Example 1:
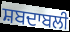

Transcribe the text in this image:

ਸ਼ਬਦਾਬਲੀ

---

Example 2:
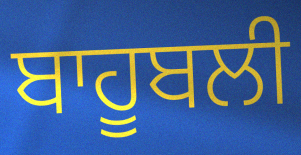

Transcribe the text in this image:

ਬਾਹੂਬਲੀ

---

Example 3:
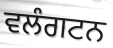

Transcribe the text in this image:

ਵਲੰਗਟਨ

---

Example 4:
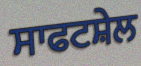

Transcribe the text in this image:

ਸਾਫਟਸ਼ੇਲ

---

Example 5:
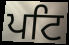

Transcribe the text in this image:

ਪਟਿ